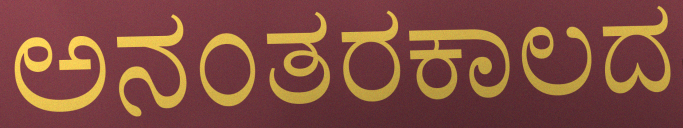
ಅನಂತರಕಾಲದ